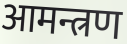
आमन्त्रण